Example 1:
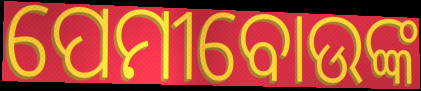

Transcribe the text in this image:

ପେମୀବୋଉଙ୍କ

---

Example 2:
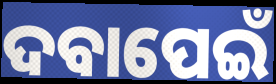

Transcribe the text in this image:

ଦବାପେଇଁ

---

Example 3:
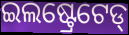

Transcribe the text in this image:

ଇଲଷ୍ଟ୍ରେଟେଡ୍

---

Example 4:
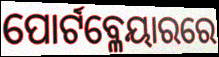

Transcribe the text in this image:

ପୋର୍ଟବ୍ଳେୟାରରେ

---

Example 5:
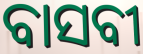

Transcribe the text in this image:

ବାସବୀ